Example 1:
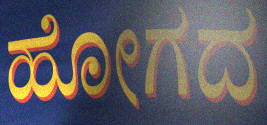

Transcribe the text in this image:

ಹೋಗದ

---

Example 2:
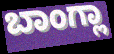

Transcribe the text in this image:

ಬಾಂಗ್ಲಾ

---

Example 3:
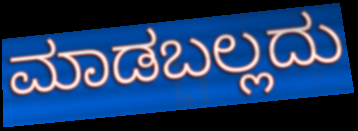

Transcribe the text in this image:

ಮಾಡಬಲ್ಲದು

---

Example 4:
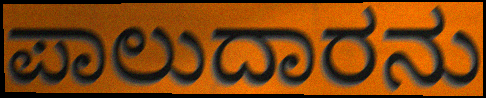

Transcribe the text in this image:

ಪಾಲುದಾರನು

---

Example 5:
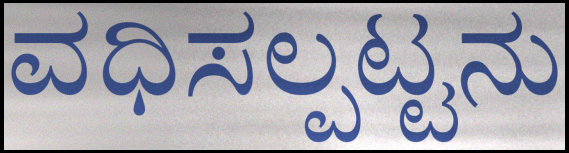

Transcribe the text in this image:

ವಧಿಸಲ್ಪಟ್ಟನು